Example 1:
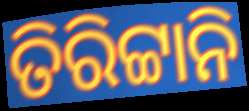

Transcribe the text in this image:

ତିରିଟ୍ଟାନି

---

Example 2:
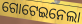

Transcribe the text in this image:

ଗୋଟେଇନେଲା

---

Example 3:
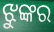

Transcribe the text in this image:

ଝୁଙ୍କର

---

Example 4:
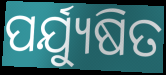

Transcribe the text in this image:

ପର୍ଯ୍ୟୁଷିତ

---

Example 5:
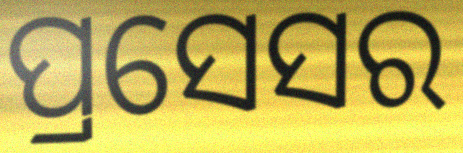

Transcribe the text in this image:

ପ୍ରସେସର